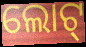
ଲୋଟ୍